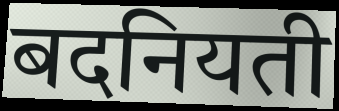
बदनियती